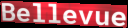
Bellevue